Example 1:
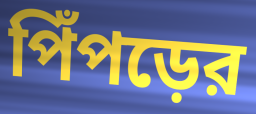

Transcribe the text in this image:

পিঁপড়ের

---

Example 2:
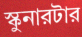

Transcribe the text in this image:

স্কুনারটার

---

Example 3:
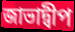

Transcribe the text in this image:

জাভাদ্বীপ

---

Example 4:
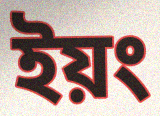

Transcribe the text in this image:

ইয়ং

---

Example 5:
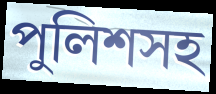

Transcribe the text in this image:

পুলিশসহ